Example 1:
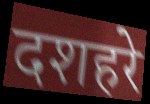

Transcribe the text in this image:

दशहरे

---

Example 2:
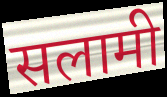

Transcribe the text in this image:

सलामी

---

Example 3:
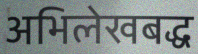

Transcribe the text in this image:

अभिलेखबद्ध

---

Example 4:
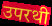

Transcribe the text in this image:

उपरथी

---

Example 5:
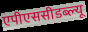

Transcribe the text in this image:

एपीएससीडब्ल्यू